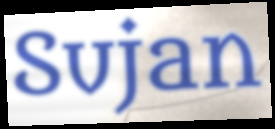
Sujan